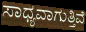
ಸಾಧ್ಯವಾಗುತ್ತಿವೆ